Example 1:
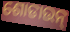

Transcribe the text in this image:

ଶୋଡାଉନ୍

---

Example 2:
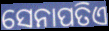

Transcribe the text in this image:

ସେନାପତିଏ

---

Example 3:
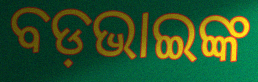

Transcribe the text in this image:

ବଡ଼ଭାଇଙ୍କ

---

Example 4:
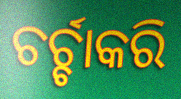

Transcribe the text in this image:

ଚର୍ଚ୍ଚାକରି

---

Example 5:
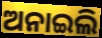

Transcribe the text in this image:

ଅନାଇଲି